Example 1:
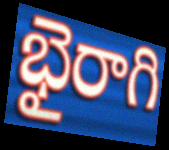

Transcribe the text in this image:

భైరాగి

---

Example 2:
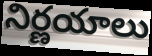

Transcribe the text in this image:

నిర్ణయాలు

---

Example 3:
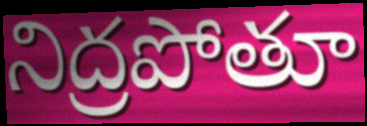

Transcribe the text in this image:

నిద్రపోతూ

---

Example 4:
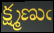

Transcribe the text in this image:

క్ష్మణుఁ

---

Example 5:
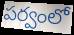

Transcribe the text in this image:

పర్వంలో